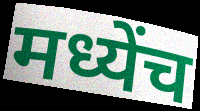
मध्येंच